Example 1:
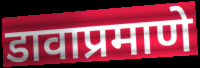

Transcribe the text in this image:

डावाप्रमाणे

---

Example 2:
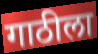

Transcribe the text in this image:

गाठीला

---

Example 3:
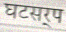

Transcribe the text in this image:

घटसर्प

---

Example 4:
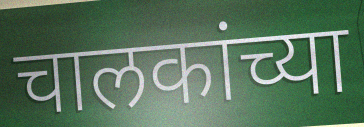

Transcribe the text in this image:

चालकांच्या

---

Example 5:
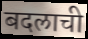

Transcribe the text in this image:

बदलाची